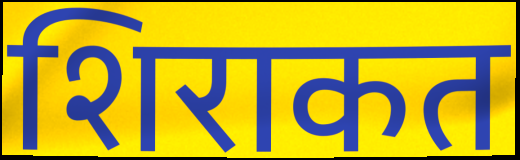
शिराकत